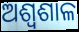
ଅଶ୍ୱଶାଳ